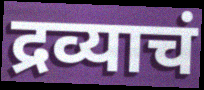
द्रव्याचं